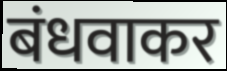
बंधवाकर